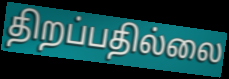
திறப்பதில்லை